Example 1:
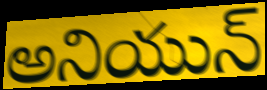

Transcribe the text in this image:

అనియున్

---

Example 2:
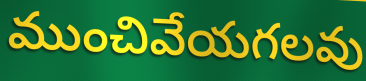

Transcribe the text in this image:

ముంచివేయగలవు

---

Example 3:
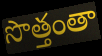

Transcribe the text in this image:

సొత్తంతా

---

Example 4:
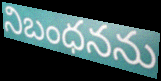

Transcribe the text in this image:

నిబంధనను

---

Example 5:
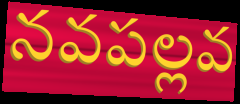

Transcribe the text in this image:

నవపల్లవ